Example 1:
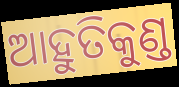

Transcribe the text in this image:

ଆହୁତିକୁଣ୍ଡ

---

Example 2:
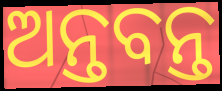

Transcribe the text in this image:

ଅନ୍ତବନ୍ତ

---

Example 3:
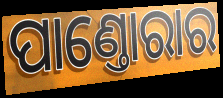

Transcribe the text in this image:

ପାଣ୍ତୋରାର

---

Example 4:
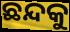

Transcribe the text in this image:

ଛନ୍ଦକୁ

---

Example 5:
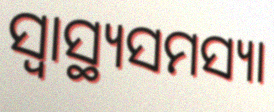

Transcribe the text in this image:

ସ୍ୱାସ୍ଥ୍ୟସମସ୍ୟା